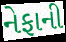
નેફાની